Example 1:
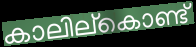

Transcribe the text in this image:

കാലില്കൊണ്ട്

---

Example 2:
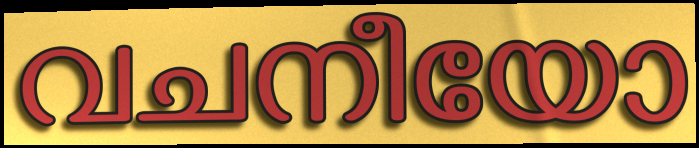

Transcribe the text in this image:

വചനീയോ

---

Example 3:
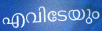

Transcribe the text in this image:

എവിടേയും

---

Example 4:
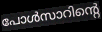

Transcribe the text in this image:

പോൾസാറിന്റെ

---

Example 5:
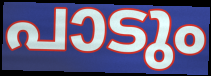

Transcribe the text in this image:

പാടും